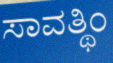
ಸಾವತ್ಥಿಂ